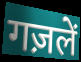
गज़लें